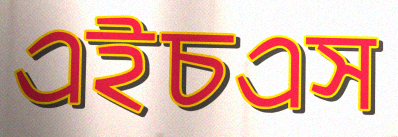
এইচএস